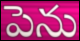
పెను